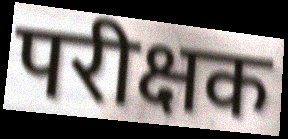
परीक्षक